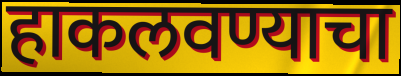
हाकलवण्याचा